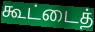
கூட்டைத்